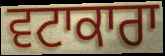
ਵਟਾਕਾਰਾ